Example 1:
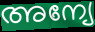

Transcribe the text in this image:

അന്യേ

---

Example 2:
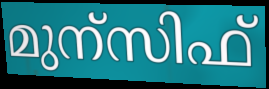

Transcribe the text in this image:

മുന്സിഫ്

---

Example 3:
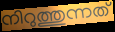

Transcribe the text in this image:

നിറുത്തുന്നത്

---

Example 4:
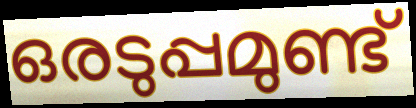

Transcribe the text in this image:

ഒരടുപ്പമുണ്ട്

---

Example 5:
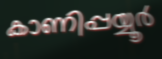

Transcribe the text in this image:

കാണിപ്പയ്യൂർ